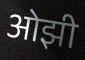
ओझी